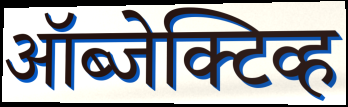
ऑब्जेक्टिव्ह